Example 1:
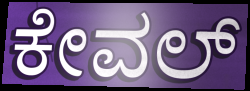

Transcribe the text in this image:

ಕೇವಲ್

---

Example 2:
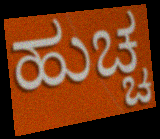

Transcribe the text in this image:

ಹುಚ್ಚ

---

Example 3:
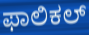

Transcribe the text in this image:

ಫಾಲಿಕಲ್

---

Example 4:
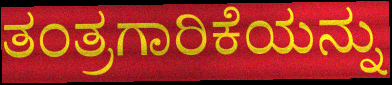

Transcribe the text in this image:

ತಂತ್ರಗಾರಿಕೆಯನ್ನು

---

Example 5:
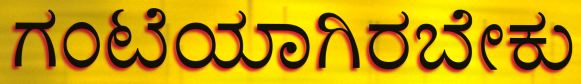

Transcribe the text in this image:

ಗಂಟೆಯಾಗಿರಬೇಕು